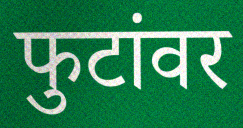
फुटांवर